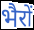
भैरों